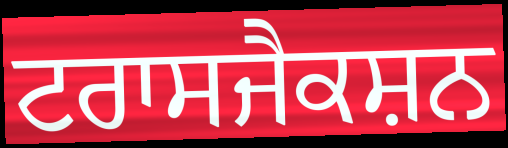
ਟਰਾਸਜੈਕਸ਼ਨ